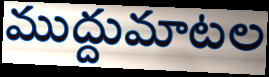
ముద్దుమాటల